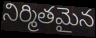
నిర్మితమైన